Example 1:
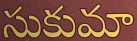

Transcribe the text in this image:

సుకుమా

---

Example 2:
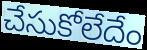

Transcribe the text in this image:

చేసుకోలేదేం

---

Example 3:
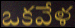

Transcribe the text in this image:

ఒకవేళ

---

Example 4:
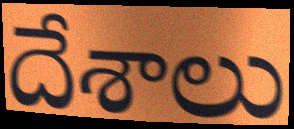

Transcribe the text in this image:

దేశాలు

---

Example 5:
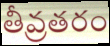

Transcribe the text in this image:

తీవ్రతరం